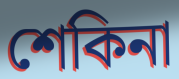
শেকিনা